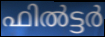
ഫിൽട്ടർ